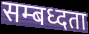
सम्बध्दता